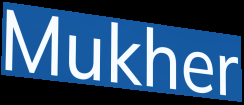
Mukher